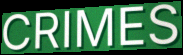
CRIMES